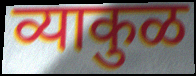
व्याकुळ